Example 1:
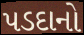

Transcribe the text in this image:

પડદાનો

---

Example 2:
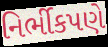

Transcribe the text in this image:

નિર્ભીકપણે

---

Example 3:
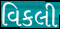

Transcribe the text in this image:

વિકલી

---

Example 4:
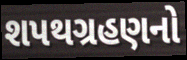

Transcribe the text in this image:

શપથગ્રહણનો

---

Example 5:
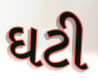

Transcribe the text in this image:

ઘટી